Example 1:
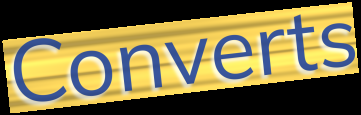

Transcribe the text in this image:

Converts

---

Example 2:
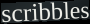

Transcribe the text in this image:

scribbles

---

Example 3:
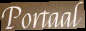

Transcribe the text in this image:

Portaal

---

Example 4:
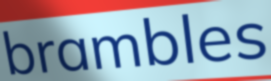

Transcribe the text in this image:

brambles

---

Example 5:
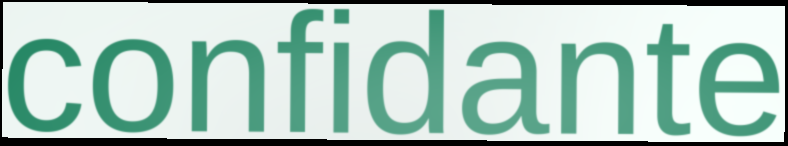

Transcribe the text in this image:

confidante